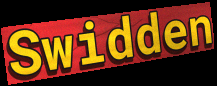
Swidden